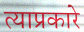
त्याप्रकारे